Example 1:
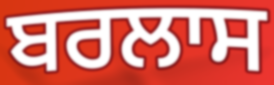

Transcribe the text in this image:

ਬਰਲਾਸ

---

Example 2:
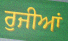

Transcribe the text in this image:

ਰੁਜੀਆਂ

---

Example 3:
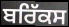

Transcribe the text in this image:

ਬਰਿੱਕਸ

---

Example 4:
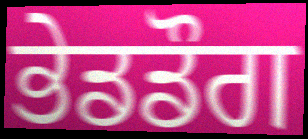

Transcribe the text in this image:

ਭੇਡਡੌਗ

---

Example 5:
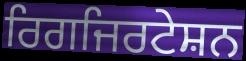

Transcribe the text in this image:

ਰਿਗਜਿਰਟੇਸ਼ਨ